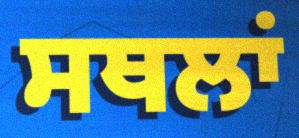
ਸਥਲਾਂ